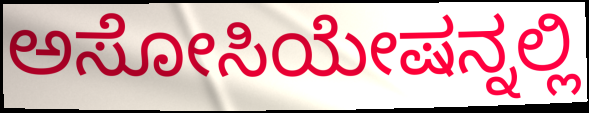
ಅಸೋಸಿಯೇಷನ್ನಲ್ಲಿ